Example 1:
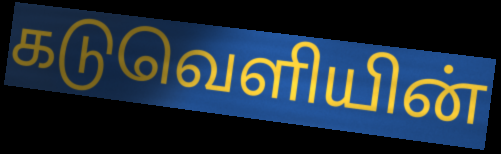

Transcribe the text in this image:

கடுவெளியின்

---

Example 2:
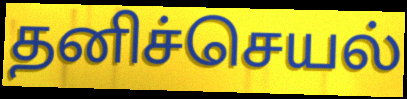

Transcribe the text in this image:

தனிச்செயல்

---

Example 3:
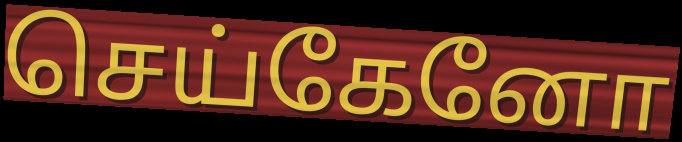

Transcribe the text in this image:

செய்கேனோ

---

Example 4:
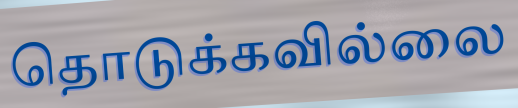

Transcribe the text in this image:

தொடுக்கவில்லை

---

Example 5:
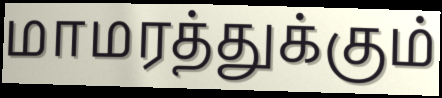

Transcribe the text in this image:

மாமரத்துக்கும்